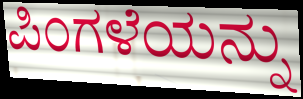
ಪಿಂಗಳೆಯನ್ನು